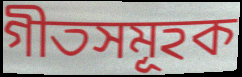
গীতসমূহক